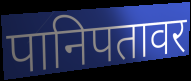
पानिपतावर